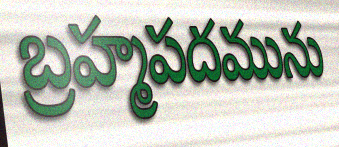
బ్రహ్మపదమును